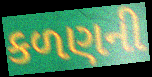
કળણની